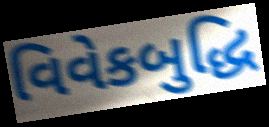
વિવેકબુદ્ધિ